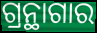
ଗ୍ରନ୍ଥାଗାର